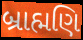
બ્રાહ્મણિ